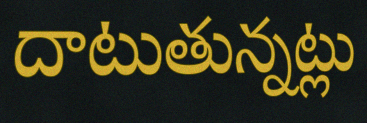
దాటుతున్నట్లు